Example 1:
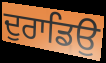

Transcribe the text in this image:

ਦੁਰਾਡਿਉ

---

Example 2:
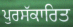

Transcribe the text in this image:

ਪੁਰਸੱਕਾਰਿਤ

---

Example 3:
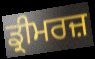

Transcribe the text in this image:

ਡ੍ਰੀਮਰਜ਼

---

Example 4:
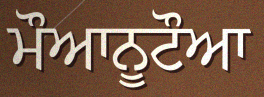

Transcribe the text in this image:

ਮੌਆਨੂਟੌਆ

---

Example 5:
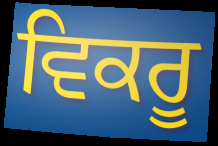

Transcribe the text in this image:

ਵਿਕਰੂ